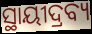
ସ୍ଥାୟୀଦ୍ରବ୍ୟ